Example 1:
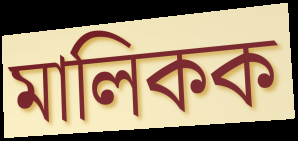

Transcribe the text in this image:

মালিকক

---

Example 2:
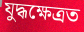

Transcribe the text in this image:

যুদ্ধক্ষেত্ৰত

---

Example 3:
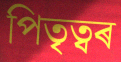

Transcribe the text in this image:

পিতৃত্বৰ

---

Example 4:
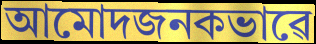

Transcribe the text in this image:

আমোদজনকভাৱে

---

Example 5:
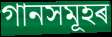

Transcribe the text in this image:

গানসমূহৰ